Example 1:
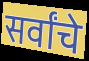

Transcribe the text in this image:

सर्वांचे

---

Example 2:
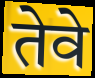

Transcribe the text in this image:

तेवे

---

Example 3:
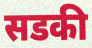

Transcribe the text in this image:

सडकी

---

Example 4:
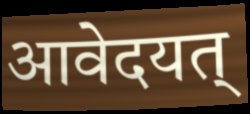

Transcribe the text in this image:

आवेदयत्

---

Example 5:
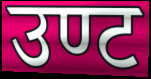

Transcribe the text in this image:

उण्ट